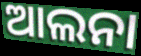
ଆଲନା